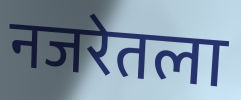
नजरेतला